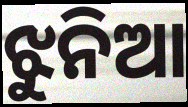
ଝୁନିଆ